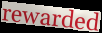
rewarded